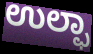
ಉಲ್ಫಾ